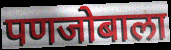
पणजोबाला